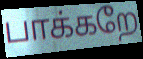
பாக்கறே